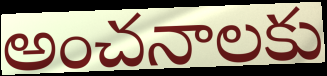
అంచనాలకు